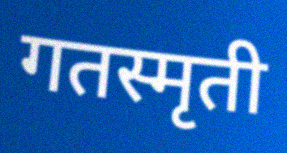
गतस्मृती